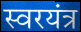
स्वरयंत्र